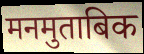
मनमुताबिक